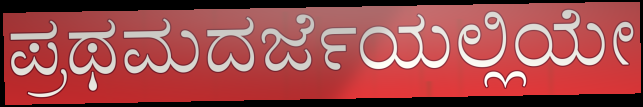
ಪ್ರಥಮದರ್ಜೆಯಲ್ಲಿಯೇ